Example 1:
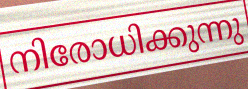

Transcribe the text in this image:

നിരോധിക്കുന്നു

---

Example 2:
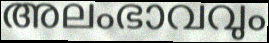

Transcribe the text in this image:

അലംഭാവവും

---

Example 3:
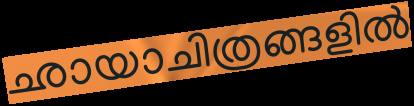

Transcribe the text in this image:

ഛായാചിത്രങ്ങളിൽ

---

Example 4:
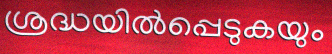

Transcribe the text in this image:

ശ്രദ്ധയിൽപ്പെടുകയും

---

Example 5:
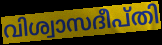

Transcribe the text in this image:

വിശ്വാസദീപ്തി